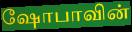
ஷோபாவின்